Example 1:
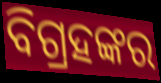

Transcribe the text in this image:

ବିଗ୍ରହଙ୍କର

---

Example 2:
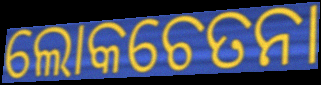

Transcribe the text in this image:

ଲୋକଚେତନା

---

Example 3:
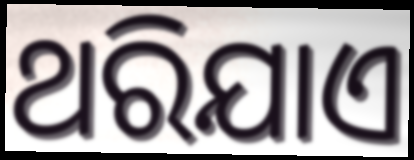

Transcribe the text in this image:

ଥରିଯାଏ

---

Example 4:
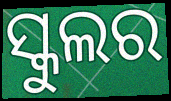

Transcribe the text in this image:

ସ୍କୁଲର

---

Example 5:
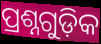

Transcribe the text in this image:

ପ୍ରଶ୍ନଗୁଡ଼ିକ